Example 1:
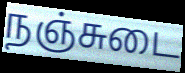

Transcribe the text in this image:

நஞ்சுடை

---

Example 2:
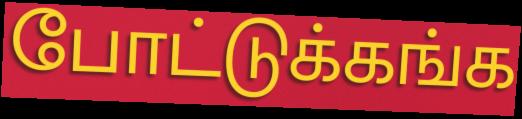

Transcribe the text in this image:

போட்டுக்கங்க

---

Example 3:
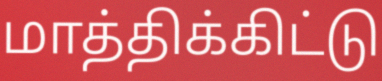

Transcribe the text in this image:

மாத்திக்கிட்டு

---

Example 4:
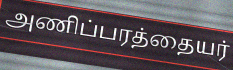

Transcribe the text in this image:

அணிப்பரத்தையர்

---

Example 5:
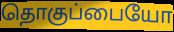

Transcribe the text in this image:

தொகுப்பையோ